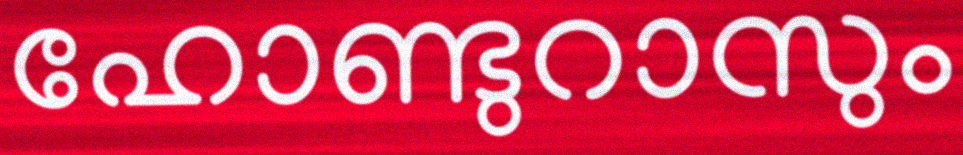
ഹോണ്ടുറാസും